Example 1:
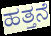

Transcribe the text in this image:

ಹತ್ತನೆ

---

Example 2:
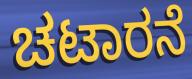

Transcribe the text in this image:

ಚಟಾರನೆ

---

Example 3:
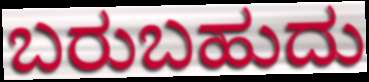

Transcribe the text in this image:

ಬರುಬಹುದು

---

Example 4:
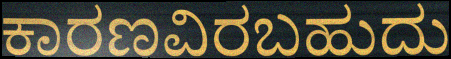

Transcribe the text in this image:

ಕಾರಣವಿರಬಹುದು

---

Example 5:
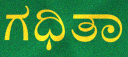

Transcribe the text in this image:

ಗಧಿತಾ